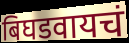
बिघडवायचं